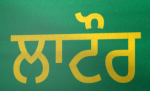
ਲਾਟੌਰ